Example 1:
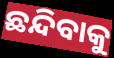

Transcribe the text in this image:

ଛନ୍ଦିବାକୁ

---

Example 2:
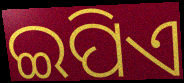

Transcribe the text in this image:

ଇପିଏ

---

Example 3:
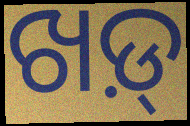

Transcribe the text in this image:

ଖଡ଼୍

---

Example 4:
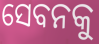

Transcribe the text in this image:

ସେବନକୁ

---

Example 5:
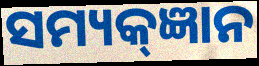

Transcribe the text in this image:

ସମ୍ୟକ୍ଜ୍ଞାନ